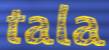
tala